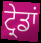
ਟ੍ਰੇਡਾਂ